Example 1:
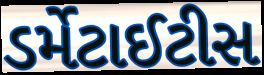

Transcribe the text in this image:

ડર્મેટાઈટીસ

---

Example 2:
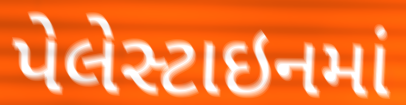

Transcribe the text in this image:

પેલેસ્ટાઇનમાં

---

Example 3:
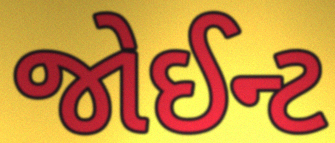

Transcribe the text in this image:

જોઈન્ટ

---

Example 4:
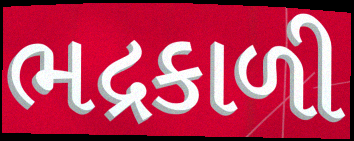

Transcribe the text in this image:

ભદ્રકાળી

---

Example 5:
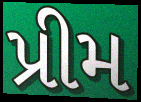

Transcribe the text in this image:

પ્રીમ